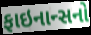
ફાઇનાન્સનો